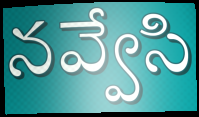
నవ్వేసి